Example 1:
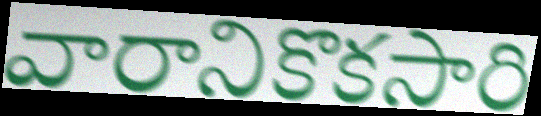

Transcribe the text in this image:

వారానికొకసారి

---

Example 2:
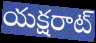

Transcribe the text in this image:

యక్షరాట్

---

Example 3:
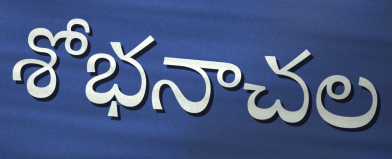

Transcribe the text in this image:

శోభనాచల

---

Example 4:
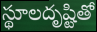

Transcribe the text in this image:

స్థూలదృష్టితో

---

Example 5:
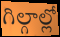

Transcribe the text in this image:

గిల్గాల్లో